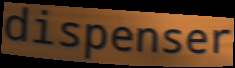
dispenser